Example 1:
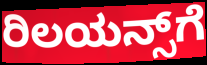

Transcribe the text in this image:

ರಿಲಯನ್ಸ್‌ಗೆ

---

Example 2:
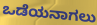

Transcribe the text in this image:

ಒಡೆಯನಾಗಲು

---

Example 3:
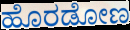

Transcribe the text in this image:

ಹೊರಡೋಣ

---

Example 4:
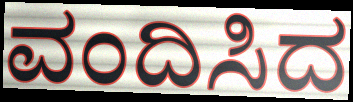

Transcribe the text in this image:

ವಂದಿಸಿದ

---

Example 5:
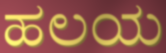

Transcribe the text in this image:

ಹಲಯ